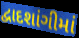
દ્વાદશાંગીમાં